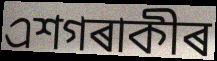
এশগৰাকীৰ